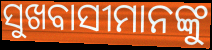
ସୁଖବାସୀମାନଙ୍କୁ